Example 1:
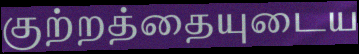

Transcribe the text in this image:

குற்றத்தையுடைய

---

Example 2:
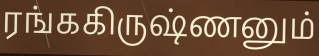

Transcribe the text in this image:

ரங்ககிருஷ்ணனும்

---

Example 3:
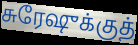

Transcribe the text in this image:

சுரேஷுக்குத்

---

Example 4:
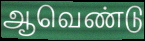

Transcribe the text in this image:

ஆவெண்டு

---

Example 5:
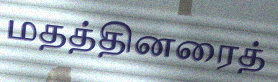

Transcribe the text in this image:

மதத்தினரைத்